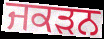
ਜਕੜਨ